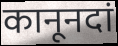
कानूनदां